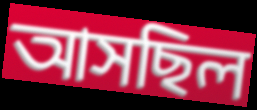
আসছিল